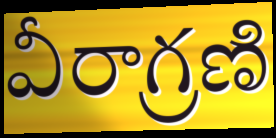
వీరాగ్రణి